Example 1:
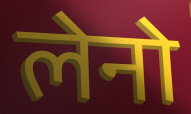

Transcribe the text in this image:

लेनो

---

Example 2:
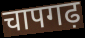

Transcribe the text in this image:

चापगढ़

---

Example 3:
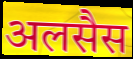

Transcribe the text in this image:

अलसैस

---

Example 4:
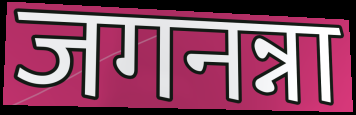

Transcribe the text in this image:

जगनन्ना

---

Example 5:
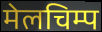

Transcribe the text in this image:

मेलचिम्प